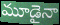
మూడైనా